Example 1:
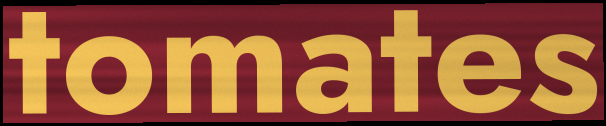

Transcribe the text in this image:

tomates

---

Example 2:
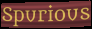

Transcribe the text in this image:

Spurious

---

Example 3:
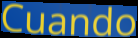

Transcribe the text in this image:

Cuando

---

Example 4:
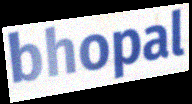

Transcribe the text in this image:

bhopal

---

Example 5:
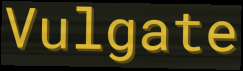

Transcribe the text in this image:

Vulgate